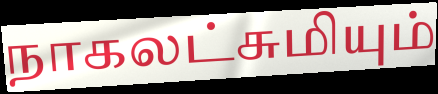
நாகலட்சுமியும்